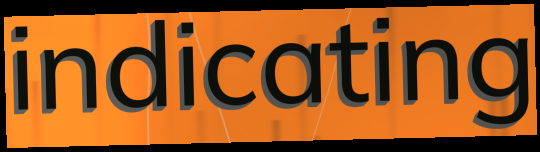
indicating